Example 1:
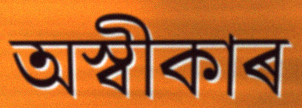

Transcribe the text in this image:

অস্বীকাৰ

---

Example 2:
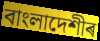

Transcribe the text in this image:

বাংলাদেশীৰ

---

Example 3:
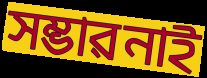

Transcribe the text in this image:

সম্ভাৱনাই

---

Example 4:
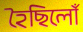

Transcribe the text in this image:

হৈছিলোঁ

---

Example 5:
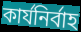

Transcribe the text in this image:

কাৰ্যনিৰ্বাহ